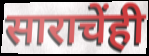
साराचेंही